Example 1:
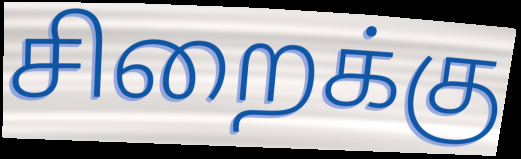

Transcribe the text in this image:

சிறைக்கு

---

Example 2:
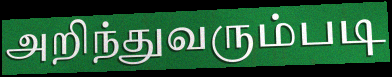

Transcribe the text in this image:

அறிந்துவரும்படி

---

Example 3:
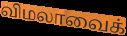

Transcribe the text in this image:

விமலாவைக்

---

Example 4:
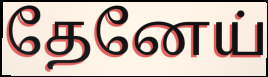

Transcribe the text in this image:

தேனேய்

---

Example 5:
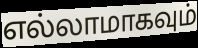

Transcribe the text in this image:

எல்லாமாகவும்